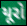
યૂરો